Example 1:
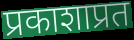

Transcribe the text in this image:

प्रकाशाप्रत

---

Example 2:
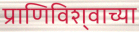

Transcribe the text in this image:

प्राणिविश्वाच्या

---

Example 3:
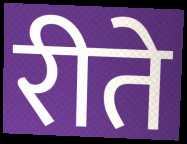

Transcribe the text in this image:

रीते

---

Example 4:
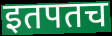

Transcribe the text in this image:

इतपतच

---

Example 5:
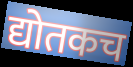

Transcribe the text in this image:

द्योतकच